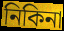
নিকিনা